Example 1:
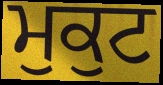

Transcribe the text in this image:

ਮੁਕੁਟ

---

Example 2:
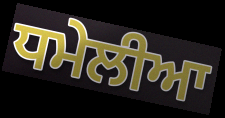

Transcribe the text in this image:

ਧਮੇਲੀਆ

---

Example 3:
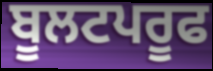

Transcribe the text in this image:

ਬੂਲਟਪਰੂਫ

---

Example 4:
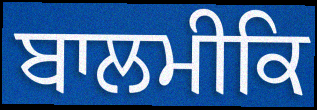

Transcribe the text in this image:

ਬਾਲਮੀਕਿ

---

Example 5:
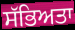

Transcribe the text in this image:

ਸੱਭਿਅਤਾ